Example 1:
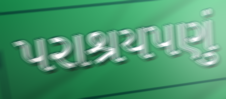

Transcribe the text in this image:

પરાશ્રયપણું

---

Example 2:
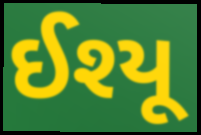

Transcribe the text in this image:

ઈશ્યૂ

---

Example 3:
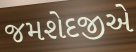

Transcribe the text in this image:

જમશેદજીએ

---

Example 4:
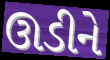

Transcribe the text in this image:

ઊડીને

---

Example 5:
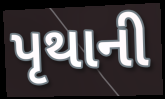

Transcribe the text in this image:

પૃથાની